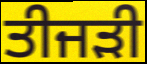
ਤੀਜੜੀ